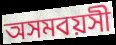
অসমবয়সী